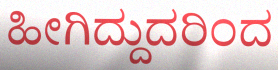
ಹೀಗಿದ್ದುದರಿಂದ